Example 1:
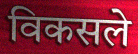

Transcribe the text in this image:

विकसले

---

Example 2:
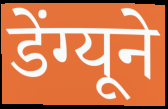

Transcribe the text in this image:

डेंग्यूने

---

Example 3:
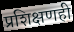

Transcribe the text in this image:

प्रशिक्षणही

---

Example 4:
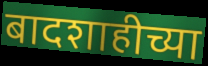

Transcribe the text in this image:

बादशाहीच्या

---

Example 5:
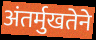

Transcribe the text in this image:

अंतर्मुखतेने